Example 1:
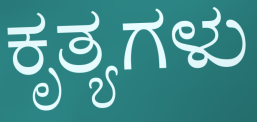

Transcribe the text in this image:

ಕೃತ್ಯಗಳು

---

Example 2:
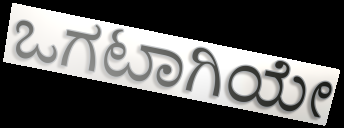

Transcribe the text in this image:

ಒಗಟಾಗಿಯೇ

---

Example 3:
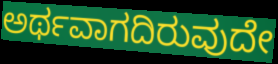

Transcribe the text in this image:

ಅರ್ಥವಾಗದಿರುವುದೇ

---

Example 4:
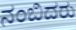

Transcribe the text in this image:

ನಂಬಿದರು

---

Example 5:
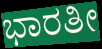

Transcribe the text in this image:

ಭಾರತೀ